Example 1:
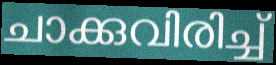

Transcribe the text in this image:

ചാക്കുവിരിച്ച്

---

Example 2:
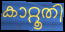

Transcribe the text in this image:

കാറ്റൂതി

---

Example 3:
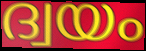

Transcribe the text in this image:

ദ്വയം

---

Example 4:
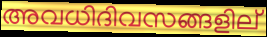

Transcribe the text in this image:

അവധിദിവസങ്ങളില്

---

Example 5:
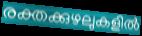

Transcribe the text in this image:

രക്തക്കുഴലുകളിൽ